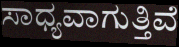
ಸಾಧ್ಯವಾಗುತ್ತಿವೆ